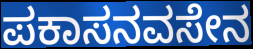
ಪಕಾಸನವಸೇನ